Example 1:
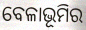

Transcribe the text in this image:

ବେଳାଭୂମିର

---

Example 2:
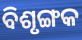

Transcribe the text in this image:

ବିଶୃଙ୍ଗକ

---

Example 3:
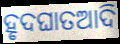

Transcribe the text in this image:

ହୃଦଘାତଆଦି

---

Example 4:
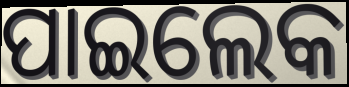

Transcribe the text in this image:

ପାଇଲେକ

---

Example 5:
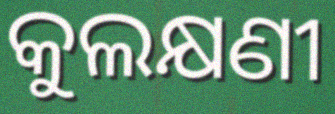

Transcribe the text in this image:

କୁଲକ୍ଷଣୀ